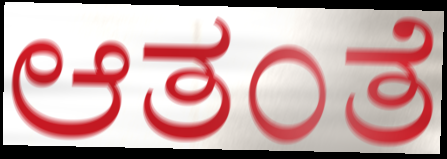
ಆತಂತೆ